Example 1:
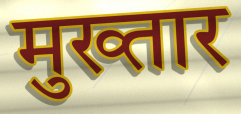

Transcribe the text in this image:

मुख्‍तार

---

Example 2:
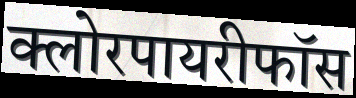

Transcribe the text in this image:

क्लोरपायरीफॉस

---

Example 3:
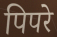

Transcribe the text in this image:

पिपरे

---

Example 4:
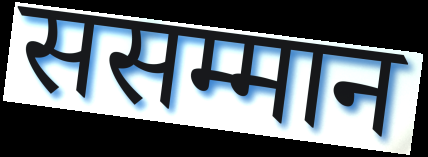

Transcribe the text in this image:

ससम्मान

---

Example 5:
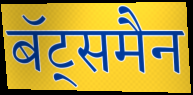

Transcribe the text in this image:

बॅट्समैन